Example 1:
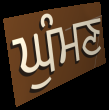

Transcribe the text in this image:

ਘੁੰਮਣ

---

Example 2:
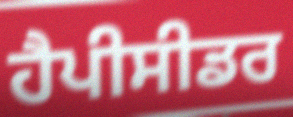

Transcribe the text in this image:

ਹੈਪੀਸੀਡਰ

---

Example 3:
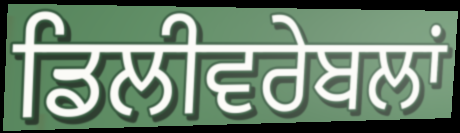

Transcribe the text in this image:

ਡਿਲੀਵਰੇਬਲਾਂ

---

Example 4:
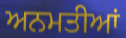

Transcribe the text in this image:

ਅਨਮਤੀਆਂ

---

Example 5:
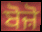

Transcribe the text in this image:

ਬੋਜ਼ੋ